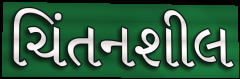
ચિંતનશીલ